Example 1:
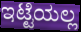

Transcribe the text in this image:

ಇಟ್ಟೆಯಲ್ಲ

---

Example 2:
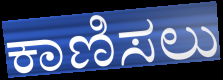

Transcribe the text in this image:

ಕಾಣಿಸಲು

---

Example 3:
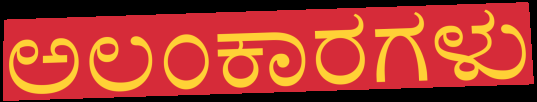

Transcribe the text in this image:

ಅಲಂಕಾರಗಳು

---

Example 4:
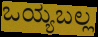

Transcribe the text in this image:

ಒಯ್ಯಬಲ್ಲ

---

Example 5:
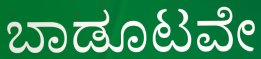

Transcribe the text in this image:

ಬಾಡೂಟವೇ